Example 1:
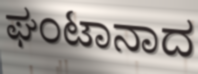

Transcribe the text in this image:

ಘಂಟಾನಾದ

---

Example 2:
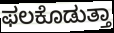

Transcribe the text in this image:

ಫಲಕೊಡುತ್ತಾ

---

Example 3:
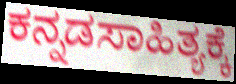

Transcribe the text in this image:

ಕನ್ನಡಸಾಹಿತ್ಯಕ್ಕೆ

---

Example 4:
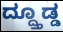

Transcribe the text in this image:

ದ್ದ್ತೂಡ್ಡ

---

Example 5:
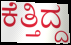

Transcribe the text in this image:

ಕೆತ್ತಿದ್ದ